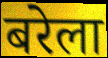
बरेला